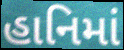
હાનિમાં